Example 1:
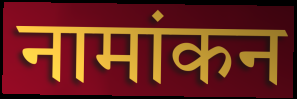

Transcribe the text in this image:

नामांकन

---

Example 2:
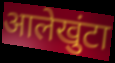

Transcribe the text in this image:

आलेखुंटा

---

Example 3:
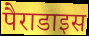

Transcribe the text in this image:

पैराडाइस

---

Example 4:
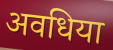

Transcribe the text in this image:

अवधिया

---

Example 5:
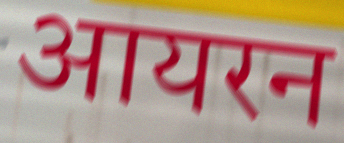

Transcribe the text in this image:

आयरन